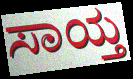
ಸಾಯ್ತ